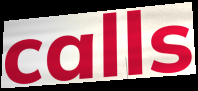
calls